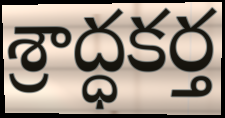
శ్రాద్ధకర్త